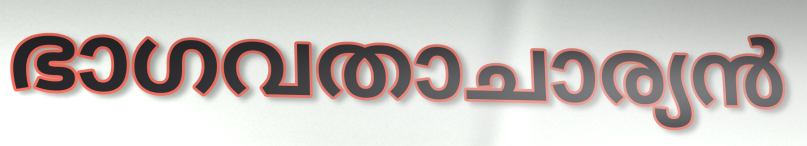
ഭാഗവതാചാര്യൻ